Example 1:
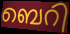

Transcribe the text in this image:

ബെറി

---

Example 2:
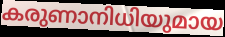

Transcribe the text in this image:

കരുണാനിധിയുമായ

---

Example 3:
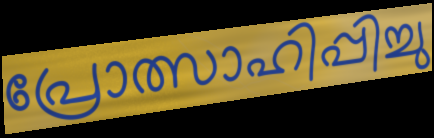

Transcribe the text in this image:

പ്രോത്സാഹിപ്പിച്ചു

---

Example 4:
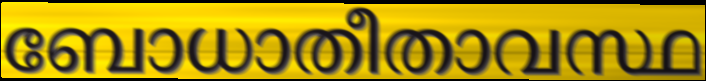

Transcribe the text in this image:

ബോധാതീതാവസ്ഥ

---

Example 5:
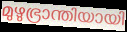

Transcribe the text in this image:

മുഴുഭ്രാന്തിയായി